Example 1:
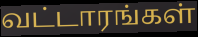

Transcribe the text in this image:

வட்டாரங்கள்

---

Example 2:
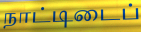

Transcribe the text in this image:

நாட்டிடைப்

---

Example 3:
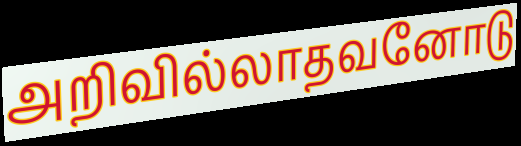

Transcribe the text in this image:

அறிவில்லாதவனோடு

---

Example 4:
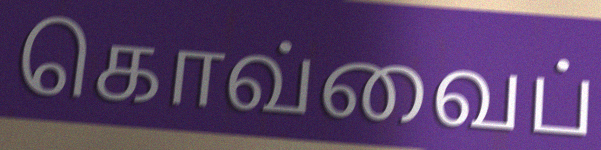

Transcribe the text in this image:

கொவ்வைப்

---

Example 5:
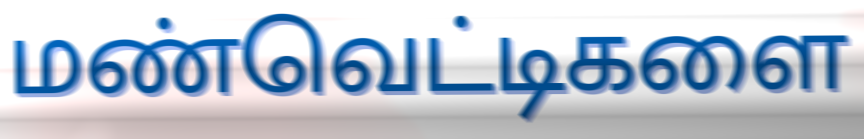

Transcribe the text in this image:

மண்வெட்டிகளை